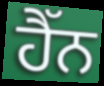
ਹੈੱਨ